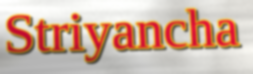
Striyancha